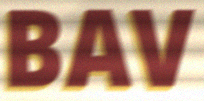
BAV